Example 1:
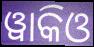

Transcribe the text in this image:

ୱାକିଓ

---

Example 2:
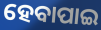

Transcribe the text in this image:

ହେବାପାଇ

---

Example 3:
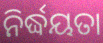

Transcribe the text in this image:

ନିର୍ଦ୍ଧୟତା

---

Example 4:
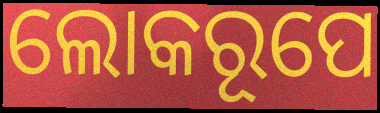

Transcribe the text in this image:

ଲୋକରୂପେ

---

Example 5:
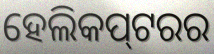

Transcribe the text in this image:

ହେଲିକପ୍‌ଟରର